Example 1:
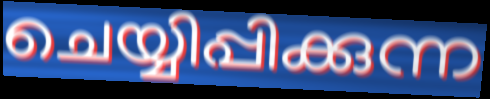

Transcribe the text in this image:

ചെയ്യിപ്പിക്കുന്ന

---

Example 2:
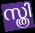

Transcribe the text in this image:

സ്ത്രി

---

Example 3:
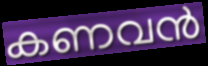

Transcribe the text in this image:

കണവൻ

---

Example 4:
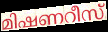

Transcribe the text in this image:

മിഷണറീസ്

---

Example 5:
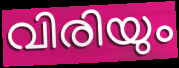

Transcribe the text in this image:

വിരിയും